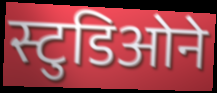
स्टुडिओने